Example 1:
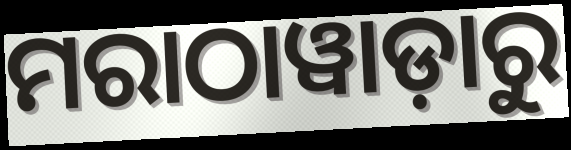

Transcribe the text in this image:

ମରାଠାୱାଡ଼ାରୁ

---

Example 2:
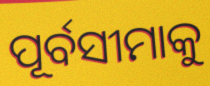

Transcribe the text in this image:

ପୂର୍ବସୀମାକୁ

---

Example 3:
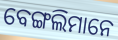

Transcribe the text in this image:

ବେଙ୍ଗଲିମାନେ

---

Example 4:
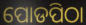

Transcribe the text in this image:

ପୋଡପିଠା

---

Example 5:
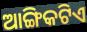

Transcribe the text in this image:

ଆଙ୍ଗିକଟିଏ